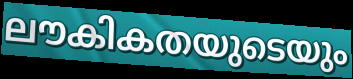
ലൗകികതയുടെയും